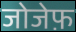
जोजेफ़